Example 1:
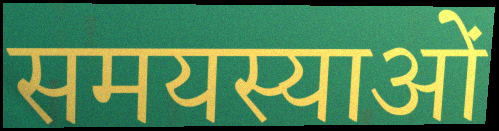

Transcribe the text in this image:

समयस्याओं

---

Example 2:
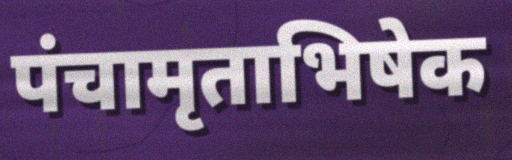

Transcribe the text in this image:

पंचामृताभिषेक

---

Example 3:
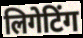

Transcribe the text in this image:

लिगेटिंग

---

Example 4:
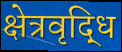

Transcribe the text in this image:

क्षेत्रवृद्धि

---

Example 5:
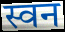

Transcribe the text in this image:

स्वन